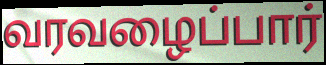
வரவழைப்பார்